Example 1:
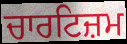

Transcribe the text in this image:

ਚਾਰਟਿਜ਼ਮ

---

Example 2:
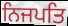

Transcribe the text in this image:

ਨਿਜਪਤਿ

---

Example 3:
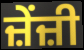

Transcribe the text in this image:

ਜ਼ੇਂਜ਼ੀ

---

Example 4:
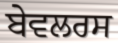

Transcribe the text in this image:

ਬੇਵਲਰਸ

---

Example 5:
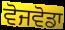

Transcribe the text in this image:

ਵੋਜਵੋਡਾ